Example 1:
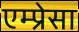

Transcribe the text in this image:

एम्प्रेसा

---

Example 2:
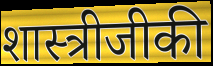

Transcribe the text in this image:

शास्त्रीजीकी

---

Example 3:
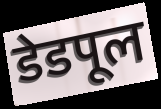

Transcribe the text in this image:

डेडपूल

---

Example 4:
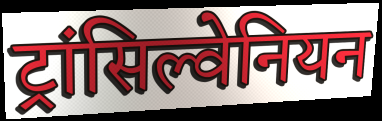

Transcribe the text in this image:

ट्रांसिल्वेनियन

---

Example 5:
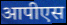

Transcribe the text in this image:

आपीएस